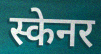
स्केनर